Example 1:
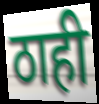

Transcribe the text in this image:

ठाही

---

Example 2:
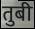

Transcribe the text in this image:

तुबी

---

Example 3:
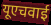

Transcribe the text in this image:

यूएचवाई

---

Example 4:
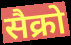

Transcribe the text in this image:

सैक्रो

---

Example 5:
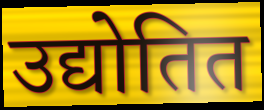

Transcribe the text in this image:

उद्योतित